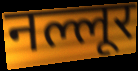
नल्लूर